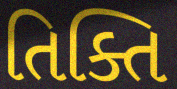
તિક્તિ